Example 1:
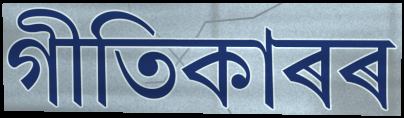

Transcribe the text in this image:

গীতিকাৰৰ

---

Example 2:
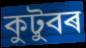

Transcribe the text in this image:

কুটুবৰ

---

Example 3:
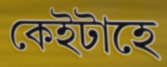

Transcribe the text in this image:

কেইটাহে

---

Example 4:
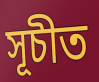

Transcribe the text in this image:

সূচীত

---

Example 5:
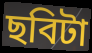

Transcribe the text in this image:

ছবিটা